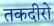
तकदीरो